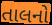
તાલનો